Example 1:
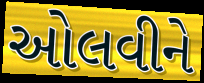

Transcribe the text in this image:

ઓલવીને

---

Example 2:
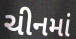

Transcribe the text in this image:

ચીનમાં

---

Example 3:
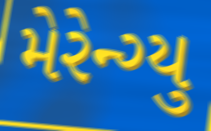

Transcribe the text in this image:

મેરેન્ગ્યુ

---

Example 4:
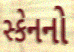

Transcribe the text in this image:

સ્કેનનો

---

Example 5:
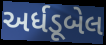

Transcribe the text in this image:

અર્ધડૂબેલ